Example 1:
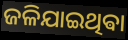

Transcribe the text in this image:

ଜଳିଯାଇଥିଵା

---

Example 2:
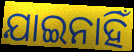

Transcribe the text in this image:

ଯାଇନାହିଁ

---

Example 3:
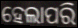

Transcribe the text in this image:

ହେଲାପରି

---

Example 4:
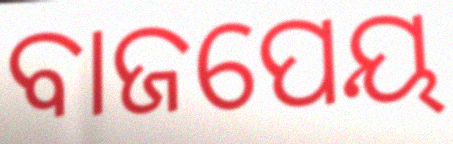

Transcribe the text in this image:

ବାଜପେୟ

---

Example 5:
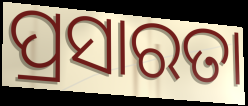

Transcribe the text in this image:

ପ୍ରସାରତା